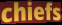
chiefs